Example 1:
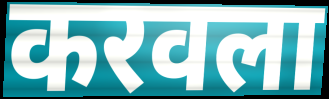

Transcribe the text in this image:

करवला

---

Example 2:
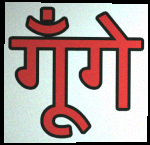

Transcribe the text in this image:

गूँगे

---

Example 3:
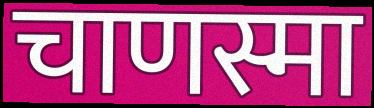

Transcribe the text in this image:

चाणस्मा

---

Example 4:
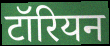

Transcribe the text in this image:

टॉरियन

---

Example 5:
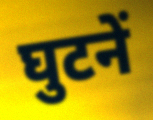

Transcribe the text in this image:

घुटनें